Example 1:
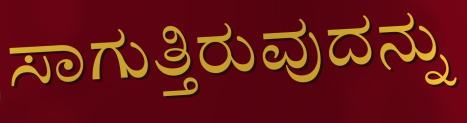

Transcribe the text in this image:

ಸಾಗುತ್ತಿರುವುದನ್ನು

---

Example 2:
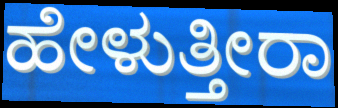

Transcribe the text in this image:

ಹೇಳುತ್ತೀರಾ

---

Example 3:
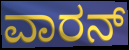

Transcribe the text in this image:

ವಾರನ್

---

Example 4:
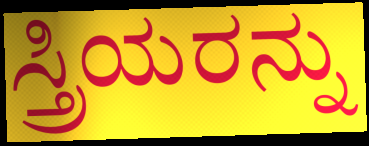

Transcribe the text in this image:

ಸ್ತ್ರಿಯರನ್ನು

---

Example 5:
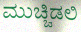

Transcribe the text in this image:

ಮುಚ್ಚಿಡಲಿ